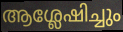
ആശ്ലേഷിച്ചും